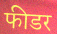
फीडर